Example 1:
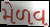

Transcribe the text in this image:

મેળવ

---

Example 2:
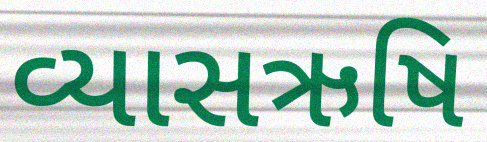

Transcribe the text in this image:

વ્યાસઋષિ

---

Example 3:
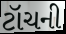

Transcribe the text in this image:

ટૉચની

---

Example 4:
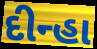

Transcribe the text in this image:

દીન્હા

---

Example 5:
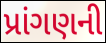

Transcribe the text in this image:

પ્રાંગણની